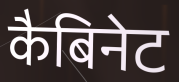
कैबिनेट